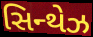
સિન્થેઝ